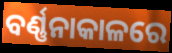
ବର୍ଣ୍ଣନାକାଳରେ